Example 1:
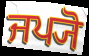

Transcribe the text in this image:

ਜਪ੍ਯੋ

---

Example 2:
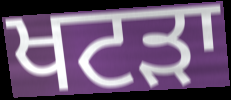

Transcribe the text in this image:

ਖਟੜਾ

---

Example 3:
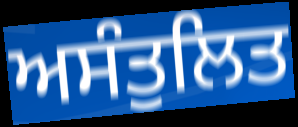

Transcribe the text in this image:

ਅਸੰਤੁਲਿਤ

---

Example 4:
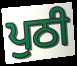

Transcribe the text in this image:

ਪੁਠੀ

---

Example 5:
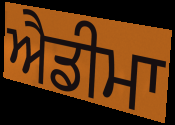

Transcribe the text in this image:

ਐਡੀਮਾ